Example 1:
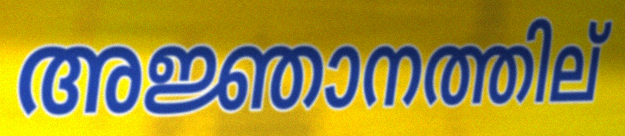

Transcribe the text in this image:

അജ്ഞാനത്തില്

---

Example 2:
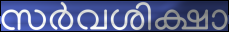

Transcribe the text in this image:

സർവശിക്ഷാ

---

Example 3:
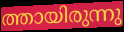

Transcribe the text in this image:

ത്തായിരുന്നു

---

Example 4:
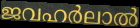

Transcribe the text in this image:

ജവഹർലാൽ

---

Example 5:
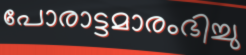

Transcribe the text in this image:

പോരാട്ടമാരംഭിച്ചു